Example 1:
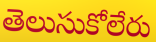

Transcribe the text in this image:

తెలుసుకోలేరు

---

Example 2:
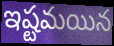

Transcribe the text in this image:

ఇష్టమయిన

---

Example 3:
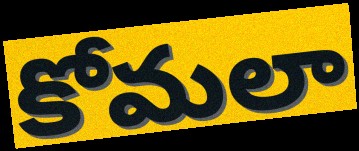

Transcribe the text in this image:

కోమలా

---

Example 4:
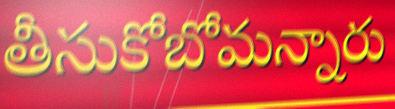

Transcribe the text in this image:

తీసుకోబోమన్నారు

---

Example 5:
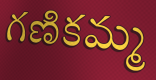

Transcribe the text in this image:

గణికమ్మ